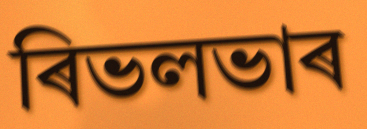
ৰিভলভাৰ